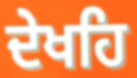
ਦੇਖਹਿ